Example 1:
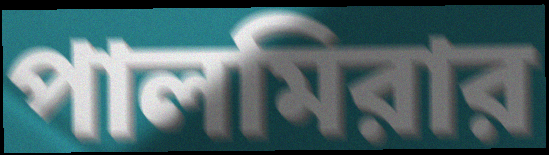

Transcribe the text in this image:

পালমিরার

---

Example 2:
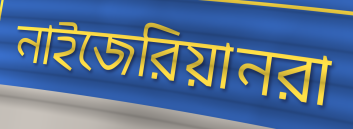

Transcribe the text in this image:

নাইজেরিয়ানরা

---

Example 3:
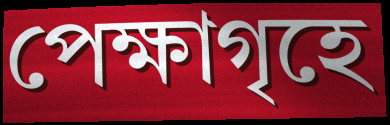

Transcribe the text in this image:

পেক্ষাগৃহে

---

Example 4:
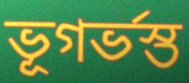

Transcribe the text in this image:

ভূগর্ভস্ত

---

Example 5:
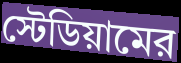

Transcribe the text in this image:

স্টেডিয়ামের